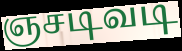
ஞசடிவடி